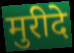
मुरीदे